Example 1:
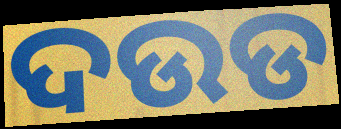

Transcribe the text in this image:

ଦଉଡ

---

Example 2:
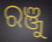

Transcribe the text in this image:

ରଞ୍ଜୁ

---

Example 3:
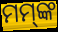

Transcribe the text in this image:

ମମ୍‍ଙ୍କ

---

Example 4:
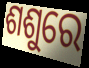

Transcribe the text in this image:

ଶଶୁରେ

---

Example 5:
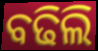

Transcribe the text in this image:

ବଢିଲି